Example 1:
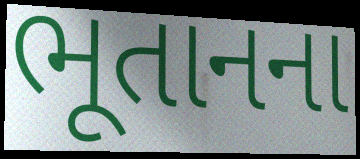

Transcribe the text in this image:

ભૂતાનના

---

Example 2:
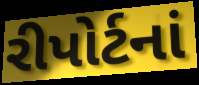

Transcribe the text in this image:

રીપોર્ટનાં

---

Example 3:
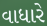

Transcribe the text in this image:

વાધારે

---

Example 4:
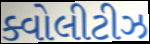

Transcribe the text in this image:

ક્વોલીટીઝ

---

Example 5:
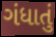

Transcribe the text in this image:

ગંધાતું